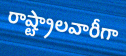
రాష్ట్రాలవారీగా